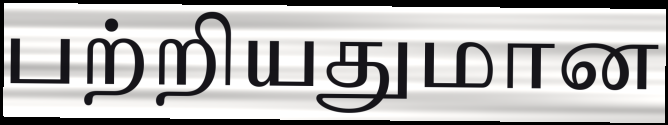
பற்றியதுமான